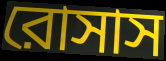
রোসাস